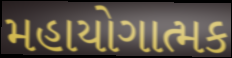
મહાયોગાત્મક